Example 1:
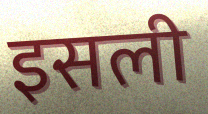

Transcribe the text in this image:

इसली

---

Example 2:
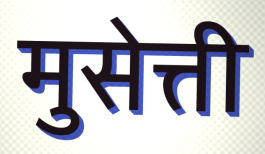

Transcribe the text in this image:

मुसेत्ती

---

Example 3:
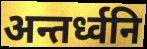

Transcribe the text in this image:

अन्तर्ध्वनि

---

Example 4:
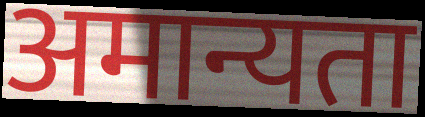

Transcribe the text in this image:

अमान्यता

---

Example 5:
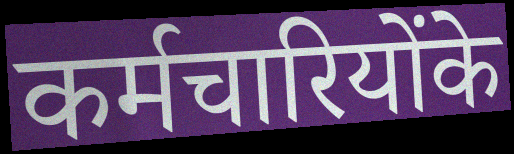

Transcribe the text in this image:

कर्मचारियोंके